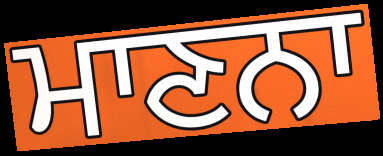
ਮਾਣਨਾ